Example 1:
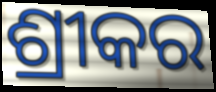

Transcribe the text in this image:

ଶ୍ରୀକର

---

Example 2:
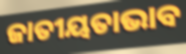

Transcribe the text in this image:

ଜାତୀୟତାଭାବ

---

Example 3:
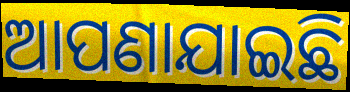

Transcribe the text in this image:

ଆପଣାଯାଇଛି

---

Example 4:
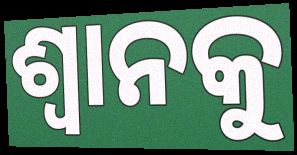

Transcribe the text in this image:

ଶ୍ଵାନକୁ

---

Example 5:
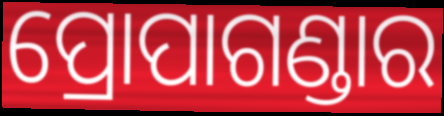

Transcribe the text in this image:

ପ୍ରୋପାଗଣ୍ଡାର